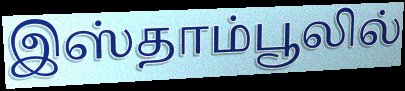
இஸ்தாம்பூலில்